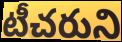
టీచరుని